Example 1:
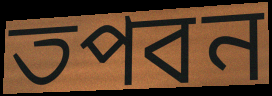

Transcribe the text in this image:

তপবন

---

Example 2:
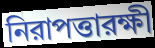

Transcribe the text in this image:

নিরাপত্তারক্ষী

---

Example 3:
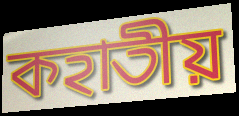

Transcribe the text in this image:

কহাতীয়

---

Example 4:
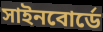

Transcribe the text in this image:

সাইনবোর্ডে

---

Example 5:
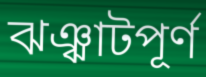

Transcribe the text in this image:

ঝঞ্ঝাটপূর্ণ